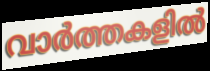
വാർത്തകളിൽ